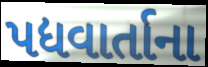
પદ્યવાર્તાના